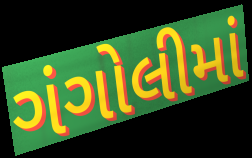
ગંગોલીમાં